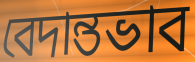
বেদান্তভাব